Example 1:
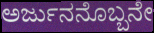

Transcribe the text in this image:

ಅರ್ಜುನನೊಬ್ಬನೇ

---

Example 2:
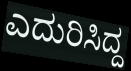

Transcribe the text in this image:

ಎದುರಿಸಿದ್ದ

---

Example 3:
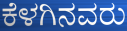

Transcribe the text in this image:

ಕೆಳಗಿನವರು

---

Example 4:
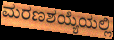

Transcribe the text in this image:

ಮರಣಶಯ್ಯೆಯಲ್ಲಿ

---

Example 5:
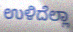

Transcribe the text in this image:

ಉಳಿದೆಲ್ಲಾ